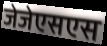
जेजेएसएस